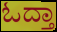
ಓದ್ತಾ